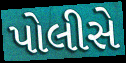
પોલીસે